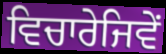
ਵਿਚਾਰੇਜਿਵੇਂ